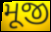
મૂજી